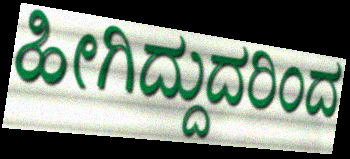
ಹೀಗಿದ್ದುದರಿಂದ